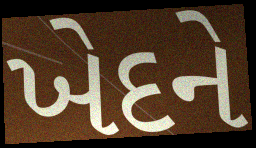
ખેદને